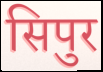
सिपुर